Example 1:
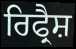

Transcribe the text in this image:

ਰਿਫ੍ਰੈਸ਼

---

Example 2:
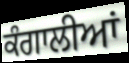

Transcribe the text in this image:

ਕੰਗਾਲੀਆਂ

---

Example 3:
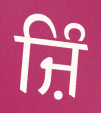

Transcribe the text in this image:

ਜ਼ਿੰ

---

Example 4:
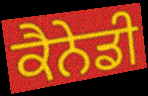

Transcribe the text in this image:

ਕੈਨੇਡੀ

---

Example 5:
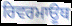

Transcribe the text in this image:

ਰਿਵਰਮਾਊਥ